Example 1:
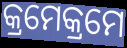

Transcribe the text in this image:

କ୍ରମେକ୍ରମେ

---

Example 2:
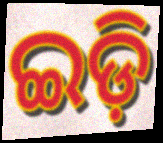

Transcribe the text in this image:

ଇଡ଼ି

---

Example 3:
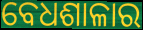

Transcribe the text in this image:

ବେଧଶାଳାର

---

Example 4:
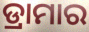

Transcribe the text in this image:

ଡ୍ରାମାର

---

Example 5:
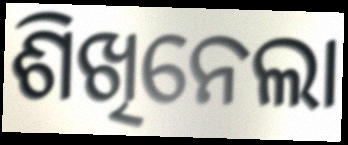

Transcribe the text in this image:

ଶିଖିନେଲା